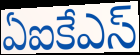
ఏఐకేఎస్